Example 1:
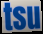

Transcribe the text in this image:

tsu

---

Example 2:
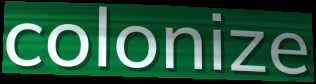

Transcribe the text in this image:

colonize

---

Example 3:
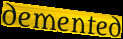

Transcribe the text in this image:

demented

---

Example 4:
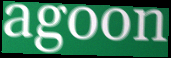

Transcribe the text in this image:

agoon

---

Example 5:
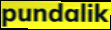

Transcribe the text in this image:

pundalik